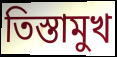
তিস্তামুখ